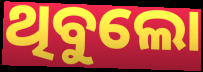
ଥିବୁଲୋ